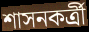
শাসনকর্ত্রী